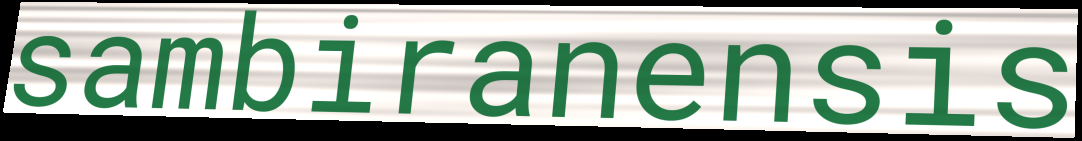
sambiranensis